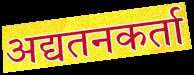
अद्यतनकर्ता